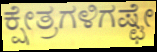
ಕ್ಷೇತ್ರಗಳಿಗಷ್ಟೇ